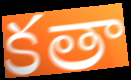
కతా